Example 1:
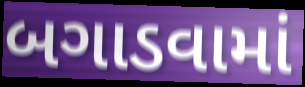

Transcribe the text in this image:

બગાડવામાં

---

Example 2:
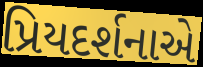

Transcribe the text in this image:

પ્રિયદર્શનાએ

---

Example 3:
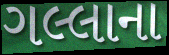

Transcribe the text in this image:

ગલ્લાના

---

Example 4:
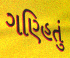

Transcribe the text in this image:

ગણ્હિતું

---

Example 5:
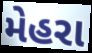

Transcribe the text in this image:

મેહરા